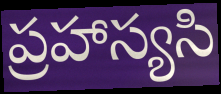
ప్రహాస్యసి